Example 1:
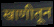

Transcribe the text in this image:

खाणीतून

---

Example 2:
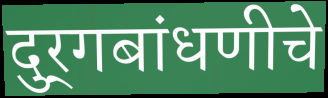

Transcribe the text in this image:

दुर्गबांधणीचे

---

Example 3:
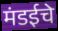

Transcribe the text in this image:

मंडईचे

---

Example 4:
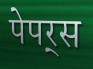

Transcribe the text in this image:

पेपर्स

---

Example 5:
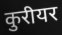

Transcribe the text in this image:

कुरीयर